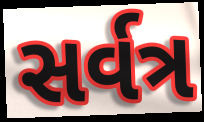
સર્વત્ર